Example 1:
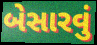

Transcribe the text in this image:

બેસારવું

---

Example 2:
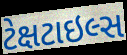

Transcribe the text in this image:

ટેક્ષટાઇલ્સ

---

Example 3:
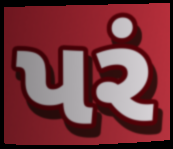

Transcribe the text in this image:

પરં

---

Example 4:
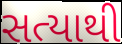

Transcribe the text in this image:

સત્યાથી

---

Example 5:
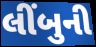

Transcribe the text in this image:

લીંબુની